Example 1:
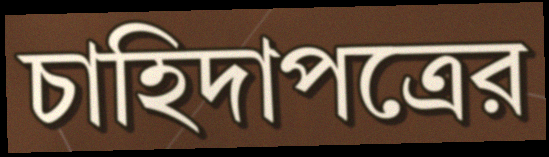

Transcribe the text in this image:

চাহিদাপত্রের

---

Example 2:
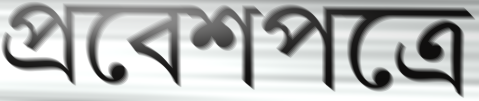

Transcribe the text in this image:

প্রবেশপত্রে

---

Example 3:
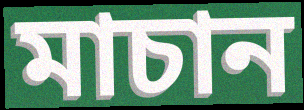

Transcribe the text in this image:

মাচান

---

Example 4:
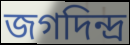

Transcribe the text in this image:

জগদিন্দ্র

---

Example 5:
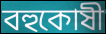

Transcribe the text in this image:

বহুকোষী